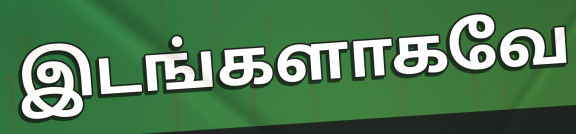
இடங்களாகவே